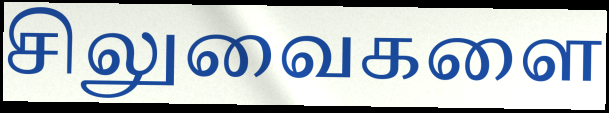
சிலுவைகளை